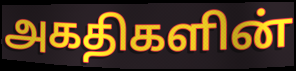
அகதிகளின்